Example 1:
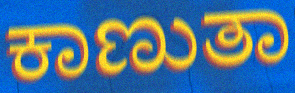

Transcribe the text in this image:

ಕಾಣುತಾ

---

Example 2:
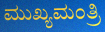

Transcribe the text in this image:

ಮುಖ್ಯಮಂತ್ರಿ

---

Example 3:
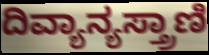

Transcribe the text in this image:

ದಿವ್ಯಾನ್ಯಸ್ತ್ರಾಣಿ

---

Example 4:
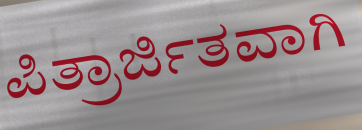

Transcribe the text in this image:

ಪಿತ್ರಾರ್ಜಿತವಾಗಿ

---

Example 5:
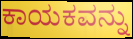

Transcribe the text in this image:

ಕಾಯಕವನ್ನು